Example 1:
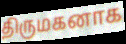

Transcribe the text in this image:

திருமகனாக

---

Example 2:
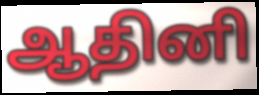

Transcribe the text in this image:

ஆதினி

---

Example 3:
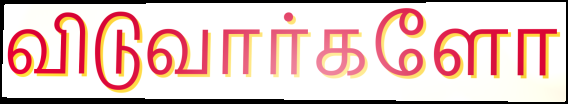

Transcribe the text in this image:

விடுவார்களோ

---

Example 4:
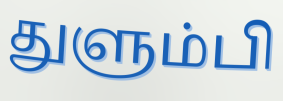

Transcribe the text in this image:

துளும்பி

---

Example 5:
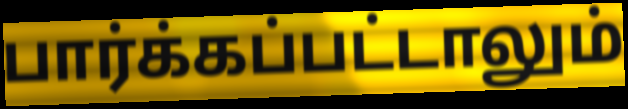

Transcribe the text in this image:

பார்க்கப்பட்டாலும்